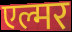
एल्मर